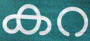
കറ